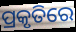
ପ୍ରକୃତିରେ